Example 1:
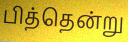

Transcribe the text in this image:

பித்தென்று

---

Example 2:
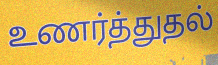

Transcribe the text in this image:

உணர்த்துதல்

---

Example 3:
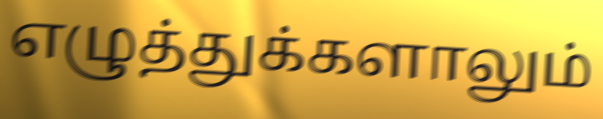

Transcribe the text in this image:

எழுத்துக்களாலும்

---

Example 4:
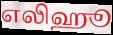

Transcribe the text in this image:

எலிஹூ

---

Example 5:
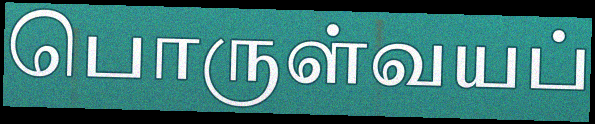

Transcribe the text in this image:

பொருள்வயப்